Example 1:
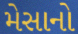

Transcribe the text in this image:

મેસાનો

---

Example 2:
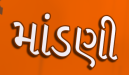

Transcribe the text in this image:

માંડણી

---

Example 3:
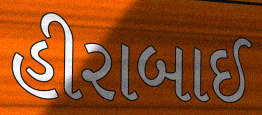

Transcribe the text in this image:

હીરાબાઈ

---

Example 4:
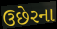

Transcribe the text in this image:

ઉછેરના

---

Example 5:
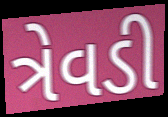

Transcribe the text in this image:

ત્રેવડી